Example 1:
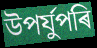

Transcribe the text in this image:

উপৰ্যুপৰি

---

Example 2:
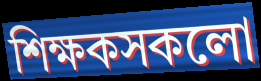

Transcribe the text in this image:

শিক্ষকসকলো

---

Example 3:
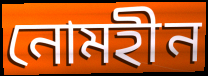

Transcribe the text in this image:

নোমহীন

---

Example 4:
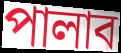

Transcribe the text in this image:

পালাব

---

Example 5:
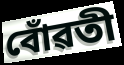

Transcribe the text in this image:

বোঁৱতী